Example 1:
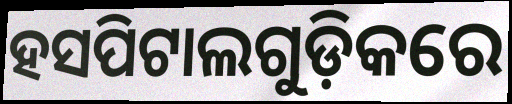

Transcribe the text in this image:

ହସପିଟାଲଗୁଡ଼ିକରେ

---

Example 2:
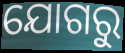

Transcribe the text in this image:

ଯୋଗରୁ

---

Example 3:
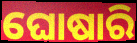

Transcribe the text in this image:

ଘୋଷାରି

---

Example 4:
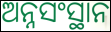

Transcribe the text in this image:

ଅନ୍ନସଂସ୍ଥାନ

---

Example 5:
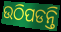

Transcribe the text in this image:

ଉଠିପଡନ୍ତି